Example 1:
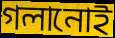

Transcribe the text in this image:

গলানোই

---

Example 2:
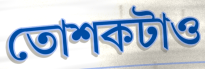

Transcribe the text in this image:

তোশকটাও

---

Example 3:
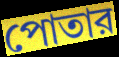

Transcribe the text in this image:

পোতার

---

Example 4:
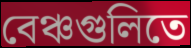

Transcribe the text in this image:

বেঞ্চগুলিতে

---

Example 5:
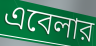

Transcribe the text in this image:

এবেলার